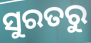
ସୁରତରୁ